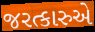
જરત્કારુએ